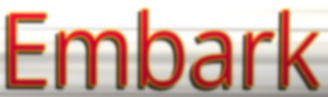
Embark